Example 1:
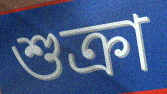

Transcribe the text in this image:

শুক্ৰা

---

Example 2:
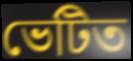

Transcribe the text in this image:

ভেটিত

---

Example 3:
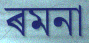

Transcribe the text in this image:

ৰমনা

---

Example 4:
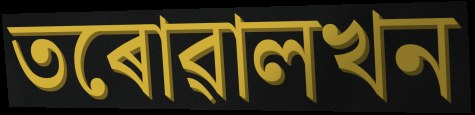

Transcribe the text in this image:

তৰোৱালখন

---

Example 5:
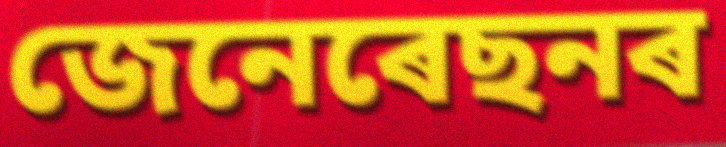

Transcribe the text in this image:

জেনেৰেছনৰ